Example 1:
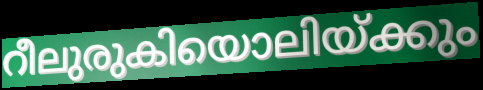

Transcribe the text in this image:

റീലുരുകിയൊലിയ്ക്കും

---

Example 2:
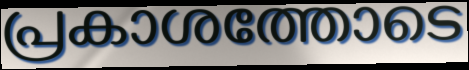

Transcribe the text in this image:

പ്രകാശത്തോടെ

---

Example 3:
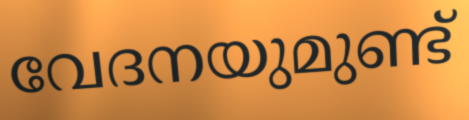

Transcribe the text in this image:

വേദനയുമുണ്ട്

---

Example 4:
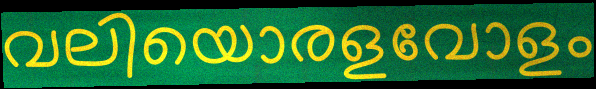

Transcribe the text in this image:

വലിയൊരളവോളം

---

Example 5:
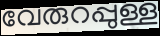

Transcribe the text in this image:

വേരുറപ്പുള്ള